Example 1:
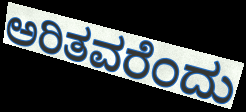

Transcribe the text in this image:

ಅರಿತವರೆಂದು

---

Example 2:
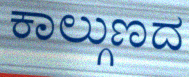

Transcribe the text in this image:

ಕಾಲ್ಗುಣದ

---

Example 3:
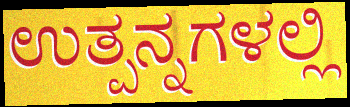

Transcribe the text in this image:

ಉತ್ಪನ್ನಗಳಲ್ಲಿ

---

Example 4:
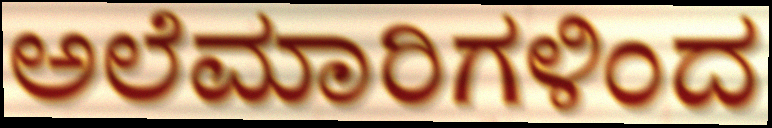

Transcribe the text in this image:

ಅಲೆಮಾರಿಗಳಿಂದ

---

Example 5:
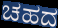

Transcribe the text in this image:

ಚಹದ